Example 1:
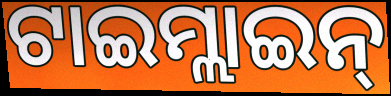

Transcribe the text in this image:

ଟାଇମ୍ଲାଇନ୍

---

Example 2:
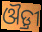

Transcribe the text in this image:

ଔଡ଼୍ରୀ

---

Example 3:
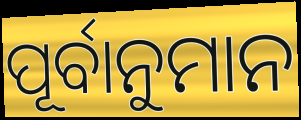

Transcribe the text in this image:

ପୂର୍ବାନୁମାନ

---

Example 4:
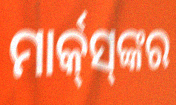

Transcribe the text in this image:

ମାର୍କ୍‌ସ୍‌ଙ୍କର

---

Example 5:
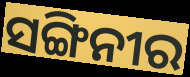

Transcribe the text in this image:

ସଙ୍ଗିନୀର